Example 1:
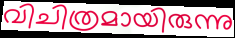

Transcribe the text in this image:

വിചിത്രമായിരുന്നു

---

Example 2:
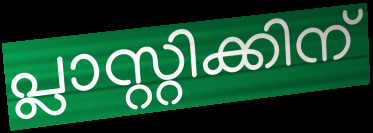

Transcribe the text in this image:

പ്ലാസ്റ്റിക്കിന്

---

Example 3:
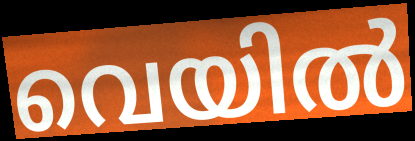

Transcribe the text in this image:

വെയിൽ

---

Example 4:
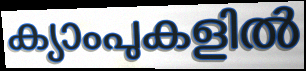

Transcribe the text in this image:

ക്യാംപുകളിൽ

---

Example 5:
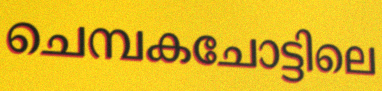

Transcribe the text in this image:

ചെമ്പകചോട്ടിലെ